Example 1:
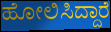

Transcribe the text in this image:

ಹೋಲಿಸಿದ್ದಾರೆ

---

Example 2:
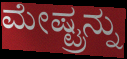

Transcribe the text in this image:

ಮೇಷ್ಟ್ರನ್ನು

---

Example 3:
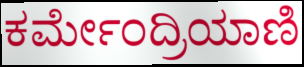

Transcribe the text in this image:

ಕರ್ಮೇಂದ್ರಿಯಾಣಿ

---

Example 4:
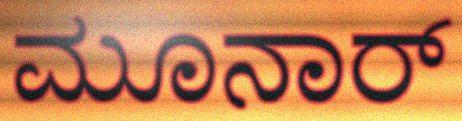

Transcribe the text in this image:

ಮೂನಾರ್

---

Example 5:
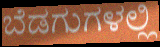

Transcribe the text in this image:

ಬೆಡಗುಗಳಲ್ಲಿ